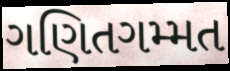
ગણિતગમ્મત